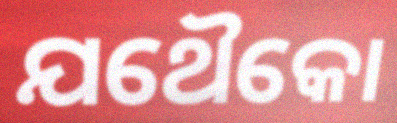
ଯଥୈକୋ